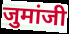
जुमांजी